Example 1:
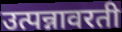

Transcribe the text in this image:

उत्पन्नावरती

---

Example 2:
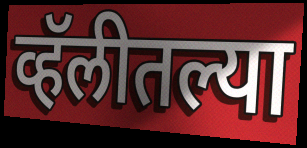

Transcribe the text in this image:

व्हॅलीतल्या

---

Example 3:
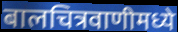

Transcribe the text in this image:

बालचित्रवाणीमध्ये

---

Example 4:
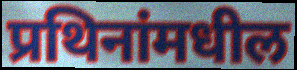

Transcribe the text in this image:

प्रथिनांमधील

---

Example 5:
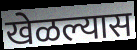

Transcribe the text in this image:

खेळल्यास